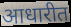
आधारीत